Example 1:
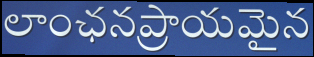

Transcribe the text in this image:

లాంఛనప్రాయమైన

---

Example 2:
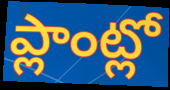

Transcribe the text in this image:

ప్లాంట్లో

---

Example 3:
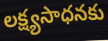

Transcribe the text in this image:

లక్ష్యసాధనకు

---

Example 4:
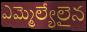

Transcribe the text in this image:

ఎమ్మెల్యేలైన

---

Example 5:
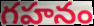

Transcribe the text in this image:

గహనం